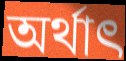
অৰ্থাৎ